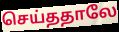
செய்ததாலே